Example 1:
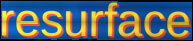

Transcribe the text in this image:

resurface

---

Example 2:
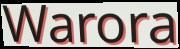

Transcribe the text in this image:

Warora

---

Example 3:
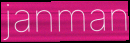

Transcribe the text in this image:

janman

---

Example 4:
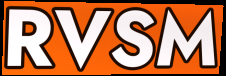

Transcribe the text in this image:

RVSM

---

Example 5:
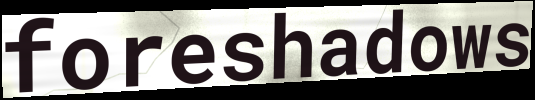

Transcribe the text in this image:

foreshadows